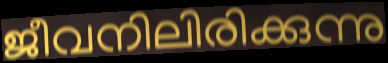
ജീവനിലിരിക്കുന്നു